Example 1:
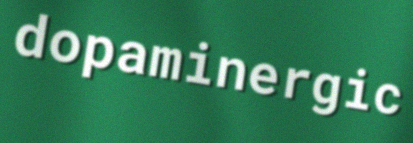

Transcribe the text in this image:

dopaminergic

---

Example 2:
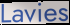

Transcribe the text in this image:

Lavies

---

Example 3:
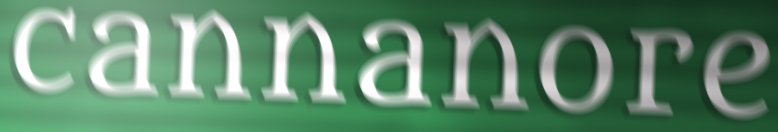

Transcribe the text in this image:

cannanore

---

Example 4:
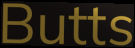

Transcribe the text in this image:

Butts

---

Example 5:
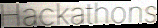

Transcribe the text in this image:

Hackathons